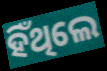
ହିଁଥିଲେ